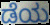
ಡೆಯ